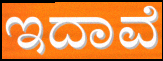
ಇದಾವೆ